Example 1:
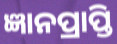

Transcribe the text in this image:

ଜ୍ଞାନପ୍ରାପ୍ତି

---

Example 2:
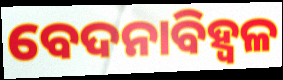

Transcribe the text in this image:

ବେଦନାବିହ୍ୱଳ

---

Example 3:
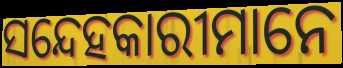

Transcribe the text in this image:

ସନ୍ଦେହକାରୀମାନେ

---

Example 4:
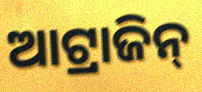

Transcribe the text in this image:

ଆଟ୍ରାଜିନ୍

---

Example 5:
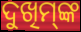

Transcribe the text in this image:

ଦୁଖିମ୍‌ଙ୍କ